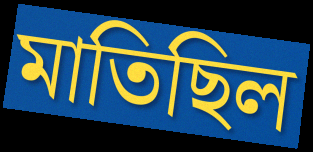
মাতিছিল